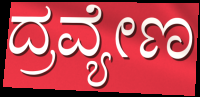
ದ್ರವ್ಯೇಣ